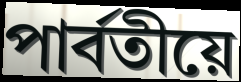
পাৰ্বতীয়ে